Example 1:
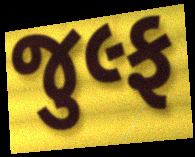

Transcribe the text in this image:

જુલ્ફ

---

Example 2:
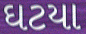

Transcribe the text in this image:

ઘટયા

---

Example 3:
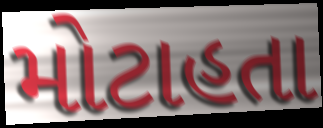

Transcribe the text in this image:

મોટાહતા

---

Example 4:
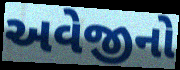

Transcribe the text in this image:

અવેજીનો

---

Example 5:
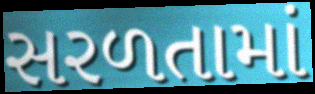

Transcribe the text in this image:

સરળતામાં